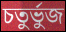
চতুৰ্ভুজ